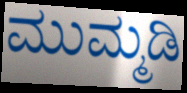
ಮುಮ್ಮಡಿ